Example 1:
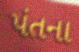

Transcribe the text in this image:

પંતના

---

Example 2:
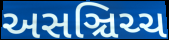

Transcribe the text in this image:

અસઞ્ચિચ્ચ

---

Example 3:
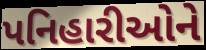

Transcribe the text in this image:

પનિહારીઓને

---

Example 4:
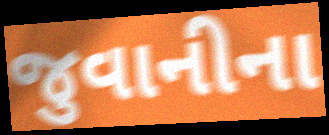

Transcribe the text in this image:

જુવાનીના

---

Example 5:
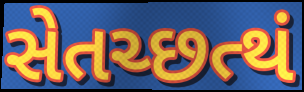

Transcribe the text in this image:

સેતચ્છત્થં